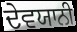
ਦੇਵਯਾਨੀ